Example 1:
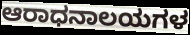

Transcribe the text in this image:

ಆರಾಧನಾಲಯಗಳ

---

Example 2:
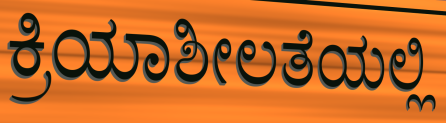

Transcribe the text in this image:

ಕ್ರಿಯಾಶೀಲತೆಯಲ್ಲಿ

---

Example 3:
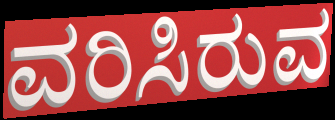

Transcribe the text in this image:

ವರಿಸಿರುವ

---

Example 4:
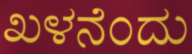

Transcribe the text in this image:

ಖಳನೆಂದು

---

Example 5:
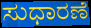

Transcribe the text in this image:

ಸುಧಾರಣೆ